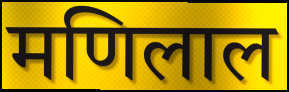
मणिलाल